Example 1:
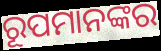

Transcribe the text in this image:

ରୂପମାନଙ୍କର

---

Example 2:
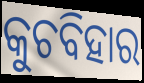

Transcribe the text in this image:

କୁଚବିହାର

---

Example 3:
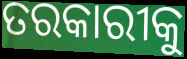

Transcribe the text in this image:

ତରକାରୀକୁ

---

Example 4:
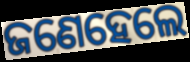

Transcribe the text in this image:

ଜଣେହେଲେ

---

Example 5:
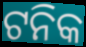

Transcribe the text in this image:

ଟନିକ